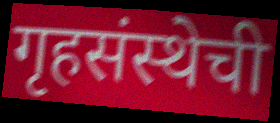
गृहसंस्थेची